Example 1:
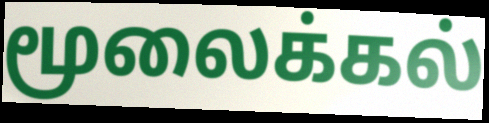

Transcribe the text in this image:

மூலைக்கல்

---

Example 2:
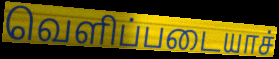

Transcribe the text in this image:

வெளிப்படையாச்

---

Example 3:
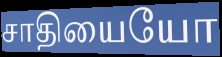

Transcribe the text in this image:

சாதியையோ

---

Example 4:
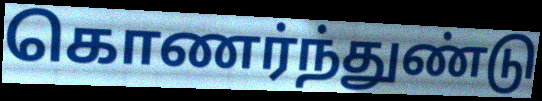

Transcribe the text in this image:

கொணர்ந்துண்டு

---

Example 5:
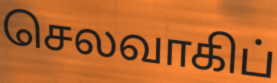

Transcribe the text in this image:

செலவாகிப்